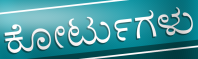
ಕೋರ್ಟುಗಳು